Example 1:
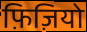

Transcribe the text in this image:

फ़िज़ियो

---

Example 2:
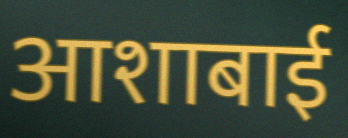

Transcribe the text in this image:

आशाबाई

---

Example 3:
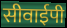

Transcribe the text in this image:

सीवाईपी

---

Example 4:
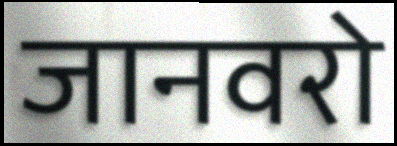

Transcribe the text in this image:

जानवरो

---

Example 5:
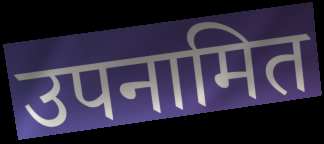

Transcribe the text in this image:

उपनामित